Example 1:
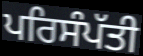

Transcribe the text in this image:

ਪਰਿਸੰਪੱਤੀ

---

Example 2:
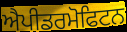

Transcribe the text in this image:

ਐਪੀਡਰਮੋਫਿਟਨ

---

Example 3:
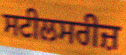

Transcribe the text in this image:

ਸਟੀਲਸਰੀਜ਼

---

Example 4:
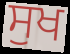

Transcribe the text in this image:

ਸੁਖ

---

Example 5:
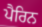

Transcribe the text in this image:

ਪੈਰਿਨ